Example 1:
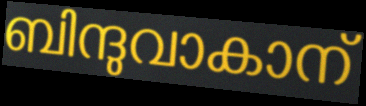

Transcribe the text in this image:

ബിന്ദുവാകാന്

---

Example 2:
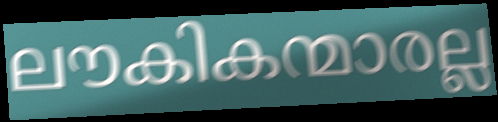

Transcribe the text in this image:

ലൗകികന്മാരല്ല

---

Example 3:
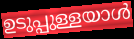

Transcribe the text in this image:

ഉടുപ്പുള്ളയാൾ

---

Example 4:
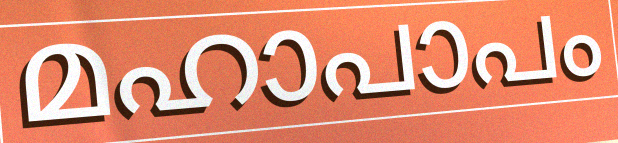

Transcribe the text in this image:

മഹാപാപം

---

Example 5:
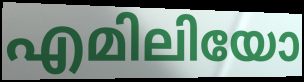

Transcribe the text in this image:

എമിലിയോ